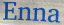
Enna